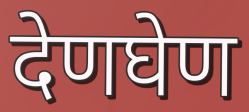
देणघेण